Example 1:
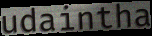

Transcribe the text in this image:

udaintha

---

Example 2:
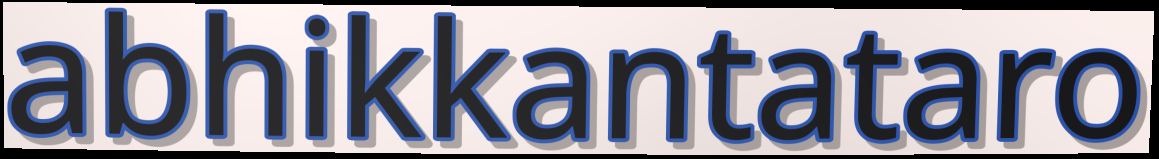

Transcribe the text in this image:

abhikkantataro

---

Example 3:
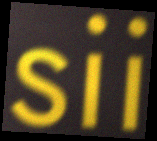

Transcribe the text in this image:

sii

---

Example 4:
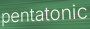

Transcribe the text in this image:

pentatonic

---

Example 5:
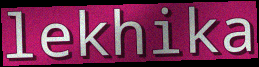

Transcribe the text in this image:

lekhika